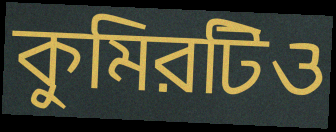
কুমিরটিও